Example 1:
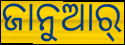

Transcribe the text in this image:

ଜାନୁଆର୍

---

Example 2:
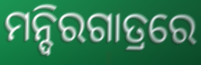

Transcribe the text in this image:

ମନ୍ଦିରଗାତ୍ରରେ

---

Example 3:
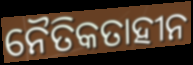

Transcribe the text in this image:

ନୈତିକତାହୀନ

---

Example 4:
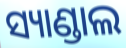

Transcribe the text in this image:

ସ୍ୟାଣ୍ଡାଲ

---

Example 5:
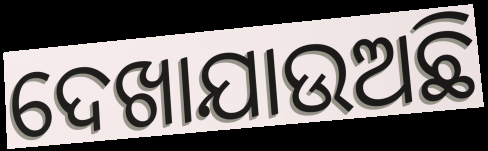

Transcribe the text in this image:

ଦେଖାଯାଉଅଛି